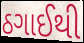
ઠગાઈથી